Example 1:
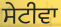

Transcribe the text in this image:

ਸੇਟੀਵਾ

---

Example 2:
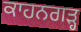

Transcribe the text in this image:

ਕਾਹਨਗੜ੍ਹ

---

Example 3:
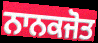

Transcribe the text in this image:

ਨਾਨਕਜੋਤ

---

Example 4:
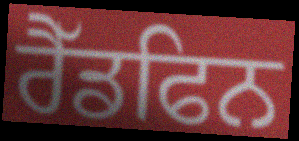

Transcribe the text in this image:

ਰੈੱਡਫਿਨ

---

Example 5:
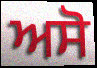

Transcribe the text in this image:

ਅਸੋ